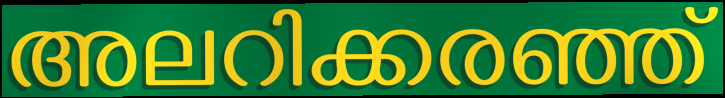
അലറിക്കരഞ്ഞ്